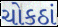
ચોકઠાં